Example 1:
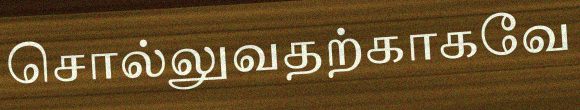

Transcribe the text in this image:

சொல்லுவதற்காகவே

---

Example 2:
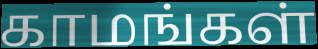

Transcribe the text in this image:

காமங்கள்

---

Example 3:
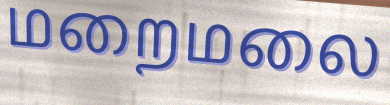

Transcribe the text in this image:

மறைமலை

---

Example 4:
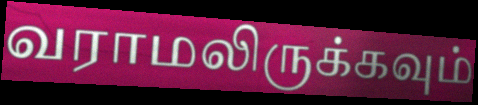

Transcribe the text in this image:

வராமலிருக்கவும்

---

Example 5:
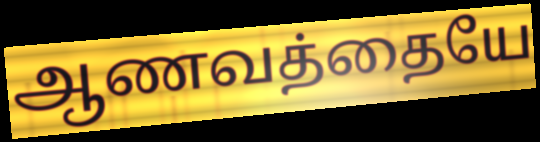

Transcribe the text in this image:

ஆணவத்தையே